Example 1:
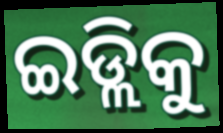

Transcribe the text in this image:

ଇଡ୍ଲିକୁ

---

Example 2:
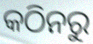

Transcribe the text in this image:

କଠିନରୁ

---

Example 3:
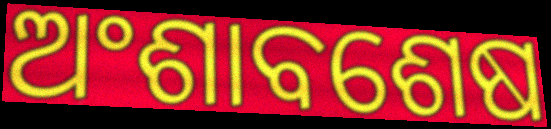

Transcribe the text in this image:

ଅଂଶାବଶେଷ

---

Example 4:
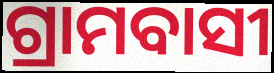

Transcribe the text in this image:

ଗ୍ରାମବାସୀ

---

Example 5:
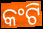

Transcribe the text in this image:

କଂଟି